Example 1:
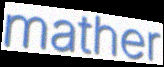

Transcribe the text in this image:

mather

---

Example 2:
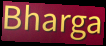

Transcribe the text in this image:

Bharga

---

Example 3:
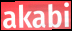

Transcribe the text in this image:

akabi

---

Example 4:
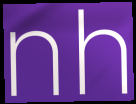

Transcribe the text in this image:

nh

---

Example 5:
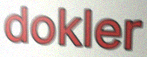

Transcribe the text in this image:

dokler